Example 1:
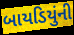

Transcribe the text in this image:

બાયડિયુંની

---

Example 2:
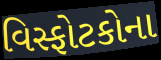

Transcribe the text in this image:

વિસ્ફોટકોના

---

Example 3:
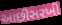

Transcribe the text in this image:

આછીસરખી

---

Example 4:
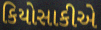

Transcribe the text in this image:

કિયોસાકીએ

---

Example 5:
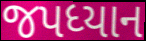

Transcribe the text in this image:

જપધ્યાન